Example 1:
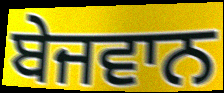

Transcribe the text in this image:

ਬੇਜਵਾਨ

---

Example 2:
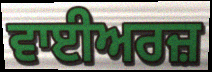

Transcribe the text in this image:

ਵਾਈਅਰਜ਼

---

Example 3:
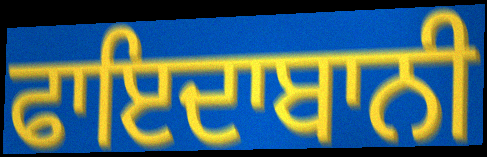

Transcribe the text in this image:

ਫਾਇਦਾਬਾਨੀ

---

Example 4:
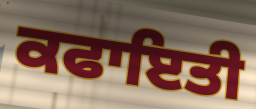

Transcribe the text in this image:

ਕਫਾਇਤੀ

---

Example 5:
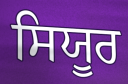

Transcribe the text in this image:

ਸਿਯੂਰ